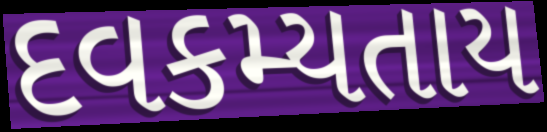
દવકમ્યતાય